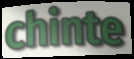
chinte